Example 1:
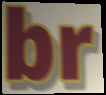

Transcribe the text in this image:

br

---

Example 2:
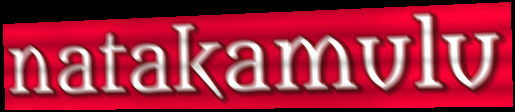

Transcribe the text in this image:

natakamulu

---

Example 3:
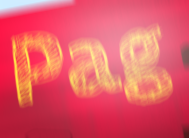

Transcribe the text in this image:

Pag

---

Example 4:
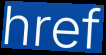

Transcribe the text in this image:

href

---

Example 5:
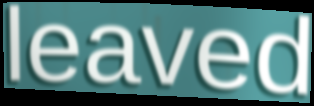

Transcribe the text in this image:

leaved